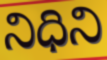
నిధిని